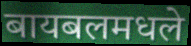
बायबलमधले